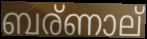
ബര്ണാല്